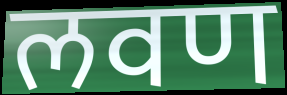
लवण